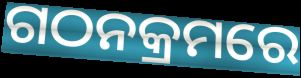
ଗଠନକ୍ରମରେ